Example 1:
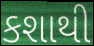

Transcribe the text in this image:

કશાથી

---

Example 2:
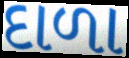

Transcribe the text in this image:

દાળા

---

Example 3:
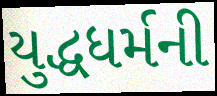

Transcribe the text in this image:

યુદ્ધધર્મની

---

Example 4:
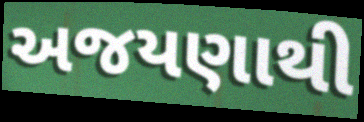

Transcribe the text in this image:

અજયણાથી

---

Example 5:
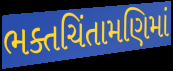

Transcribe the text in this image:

ભક્તચિંતામણિમાં